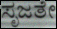
ಸೃಜತೇ